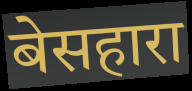
बेसहारा